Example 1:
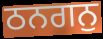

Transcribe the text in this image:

ਠਨਗਨੁ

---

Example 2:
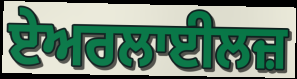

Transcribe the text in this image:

ਏਅਰਲਾਈਲਜ਼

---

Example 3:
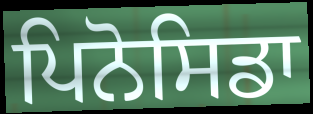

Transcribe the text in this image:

ਪਿਨੋਸਿਡਾ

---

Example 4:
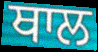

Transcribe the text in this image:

ਥਾਲ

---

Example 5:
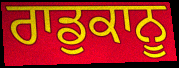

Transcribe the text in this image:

ਰਾਡੁਕਾਨੂ